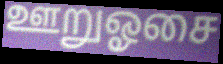
ஊறுஓசை